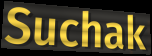
Suchak